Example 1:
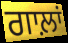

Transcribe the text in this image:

ਗਾਲ਼ਾਂ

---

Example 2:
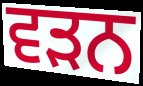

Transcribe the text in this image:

ਵੜਨ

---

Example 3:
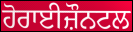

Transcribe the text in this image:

ਹੋਰਾਈਜ਼ੌਨਟਲ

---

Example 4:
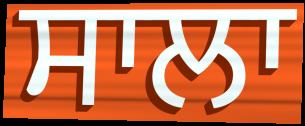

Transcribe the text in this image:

ਸਾਲਾ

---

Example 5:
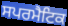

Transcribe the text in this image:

ਸਪਰਮੈਟਿਕ